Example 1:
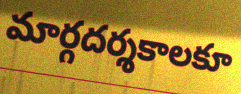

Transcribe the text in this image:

మార్గదర్శకాలకూ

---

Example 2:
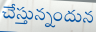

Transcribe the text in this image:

చేస్తున్నందున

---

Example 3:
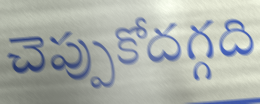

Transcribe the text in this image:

చెప్పుకోదగ్గది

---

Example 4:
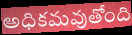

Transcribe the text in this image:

అధికమవుతోంది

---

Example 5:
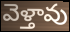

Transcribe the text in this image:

వెళ్తావు